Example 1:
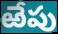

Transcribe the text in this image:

ఱేపు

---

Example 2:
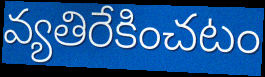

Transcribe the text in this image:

వ్యతిరేకించటం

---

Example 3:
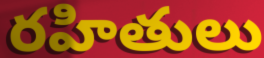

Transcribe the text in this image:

రహితులు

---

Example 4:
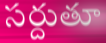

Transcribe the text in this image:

సర్దుతూ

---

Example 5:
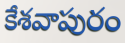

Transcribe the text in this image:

కేశవాపురం